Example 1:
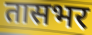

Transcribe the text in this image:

तासभर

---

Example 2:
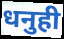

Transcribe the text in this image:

धनुही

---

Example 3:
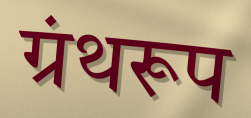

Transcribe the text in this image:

ग्रंथरूप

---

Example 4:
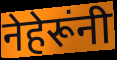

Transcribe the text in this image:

नेहेरूंनी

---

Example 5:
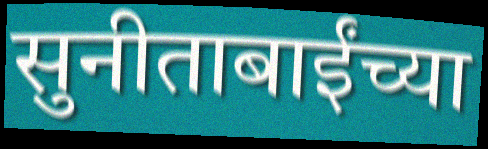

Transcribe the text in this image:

सुनीताबाईंच्या